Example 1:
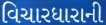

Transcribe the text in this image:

વિચારધારાની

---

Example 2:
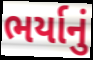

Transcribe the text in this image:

ભર્યાનું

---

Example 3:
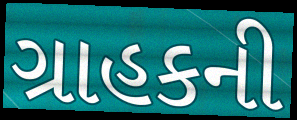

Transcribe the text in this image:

ગ્રાહકની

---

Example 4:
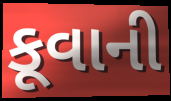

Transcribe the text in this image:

કૂવાની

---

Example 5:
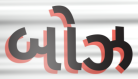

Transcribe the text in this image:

બોઝ